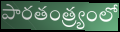
పారతంత్ర్యంలో